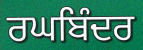
ਰਘਬਿੰਦਰ